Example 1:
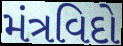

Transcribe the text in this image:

મંત્રવિદો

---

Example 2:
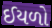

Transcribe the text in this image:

ઈયળો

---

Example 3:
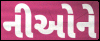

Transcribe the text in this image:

નીઓને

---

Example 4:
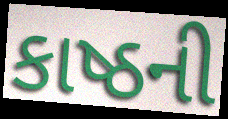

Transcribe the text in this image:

કાષ્ઠની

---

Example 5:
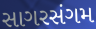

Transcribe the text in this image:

સાગરસંગમ